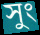
সুং